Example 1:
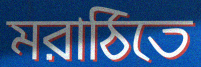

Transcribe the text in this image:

মরাঠিতে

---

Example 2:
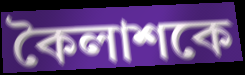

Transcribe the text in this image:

কৈলাশকে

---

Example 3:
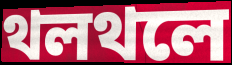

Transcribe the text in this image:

থলথলে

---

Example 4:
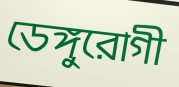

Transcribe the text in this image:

ডেঙ্গুরোগী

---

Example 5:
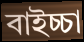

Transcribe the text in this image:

বাইচ্চা